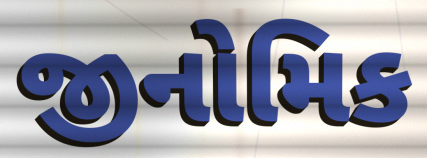
જીનોમિક